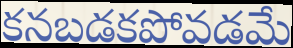
కనబడకపోవడమే